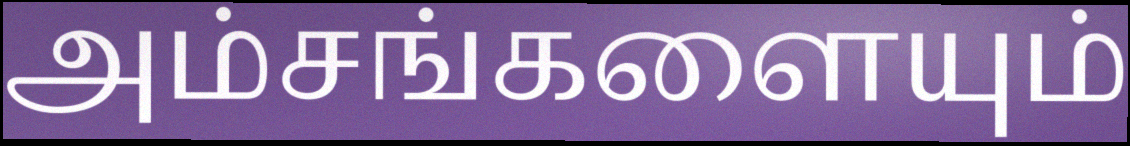
அம்சங்களையும்